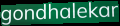
gondhalekar